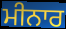
ਮੀਨਾਰ